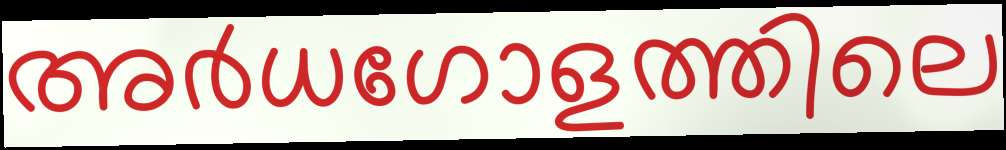
അർധഗോളത്തിലെ